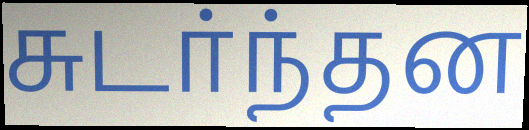
சுடர்ந்தன